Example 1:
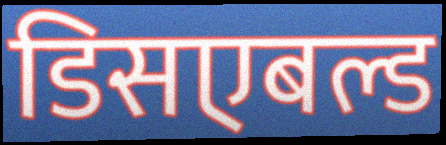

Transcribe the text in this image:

डिसएबल्ड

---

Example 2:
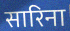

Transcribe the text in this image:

सारिना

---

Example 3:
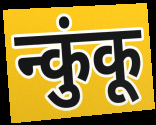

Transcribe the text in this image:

न्कुंकू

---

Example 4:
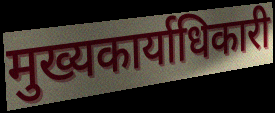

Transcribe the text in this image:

मुख्यकार्याधिकारी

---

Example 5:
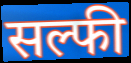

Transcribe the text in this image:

सल्फी